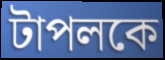
টাপলকে